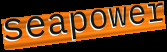
seapower